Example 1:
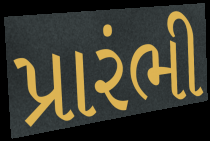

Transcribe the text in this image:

પ્રારંભી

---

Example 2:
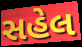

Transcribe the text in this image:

સહેલ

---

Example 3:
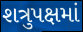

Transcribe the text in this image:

શત્રુપક્ષમાં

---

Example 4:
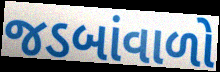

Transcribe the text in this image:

જડબાંવાળો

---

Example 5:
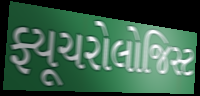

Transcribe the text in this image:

ફ્યૂચરોલોજિસ્ટ